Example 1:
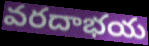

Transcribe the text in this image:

వరదాభయ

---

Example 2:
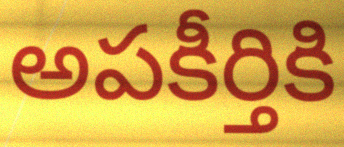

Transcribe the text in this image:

అపకీర్తికి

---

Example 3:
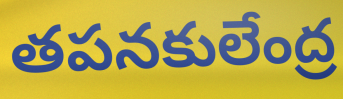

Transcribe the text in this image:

తపనకులేంద్ర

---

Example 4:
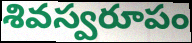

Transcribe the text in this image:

శివస్వరూపం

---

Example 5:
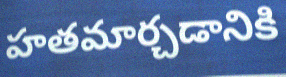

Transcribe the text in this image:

హతమార్చడానికి